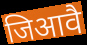
जिआवै